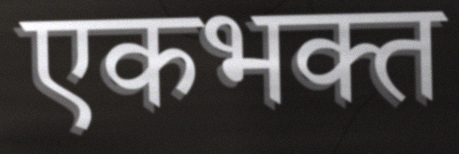
एकभक्त